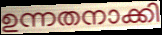
ഉന്നതനാക്കി